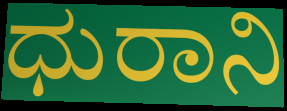
ಧುರಾನಿ